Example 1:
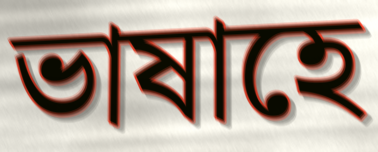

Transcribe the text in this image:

ভাষাহে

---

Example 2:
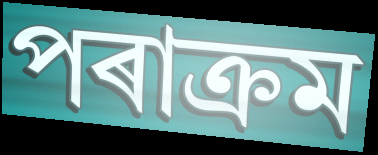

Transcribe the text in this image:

পৰাক্ৰম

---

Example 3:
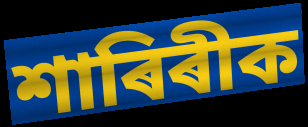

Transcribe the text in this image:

শাৰিৰীক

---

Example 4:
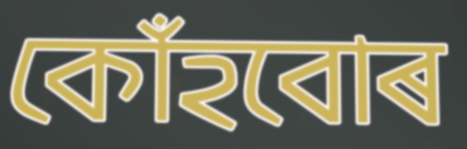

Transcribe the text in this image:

কোঁহবোৰ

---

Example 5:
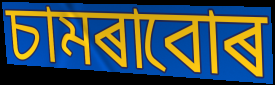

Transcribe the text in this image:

চামৰাবোৰ